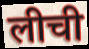
लीची